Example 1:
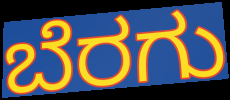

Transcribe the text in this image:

ಬೆರಗು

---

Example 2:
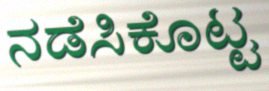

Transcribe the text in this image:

ನಡೆಸಿಕೊಟ್ಟ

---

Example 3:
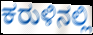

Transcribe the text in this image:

ಕರುಳಿನಲ್ಲಿ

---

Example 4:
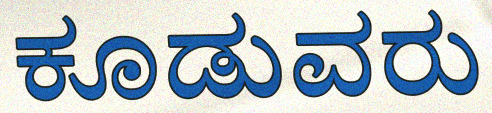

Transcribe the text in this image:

ಕೂಡುವರು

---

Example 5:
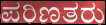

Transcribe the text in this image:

ಪರಿಣತರು